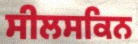
ਸੀਲਸਕਿਨ